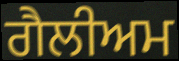
ਗੈਲੀਅਮ